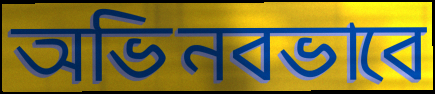
অভিনবভাবে